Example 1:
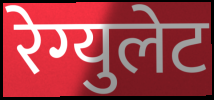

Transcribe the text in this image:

रेग्‍युलेट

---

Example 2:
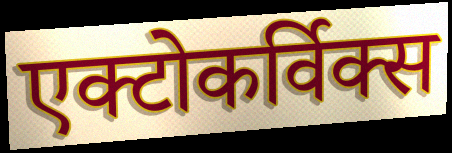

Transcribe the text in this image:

एक्टोकर्विक्स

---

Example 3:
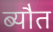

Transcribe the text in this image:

ब्यौत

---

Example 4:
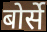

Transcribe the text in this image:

बोर्से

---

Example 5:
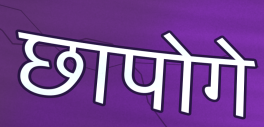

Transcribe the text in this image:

छापोगे